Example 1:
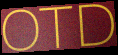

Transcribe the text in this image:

OTD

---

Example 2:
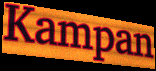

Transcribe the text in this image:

Kampan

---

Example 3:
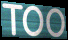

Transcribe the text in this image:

TOO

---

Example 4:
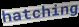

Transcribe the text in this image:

hatching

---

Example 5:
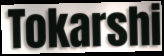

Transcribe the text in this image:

Tokarshi